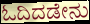
ಓದಿದಡೇನು